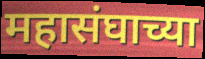
महासंघाच्या